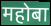
महोबा